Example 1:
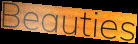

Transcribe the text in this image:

Beauties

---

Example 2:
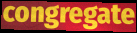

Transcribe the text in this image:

congregate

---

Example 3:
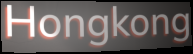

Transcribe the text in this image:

Hongkong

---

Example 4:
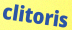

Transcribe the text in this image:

clitoris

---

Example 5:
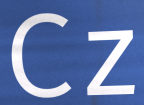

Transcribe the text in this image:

Cz